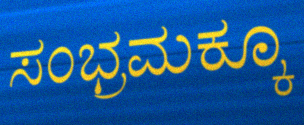
ಸಂಭ್ರಮಕ್ಕೂ